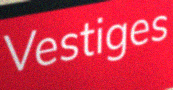
Vestiges